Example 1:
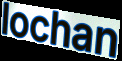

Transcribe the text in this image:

lochan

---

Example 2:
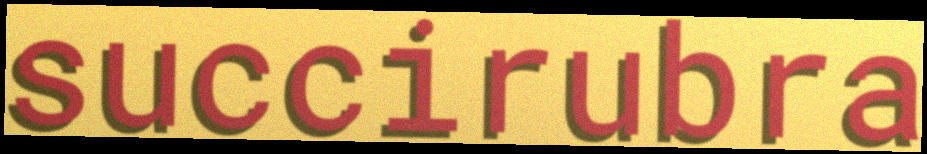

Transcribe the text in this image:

succirubra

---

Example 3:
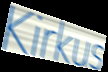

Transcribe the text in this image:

Kirkus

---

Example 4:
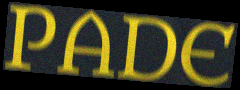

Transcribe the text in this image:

PADE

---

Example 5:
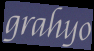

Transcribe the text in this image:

grahyo